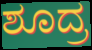
ಶೂದ್ರ